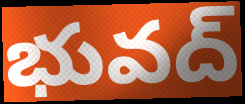
భువద్